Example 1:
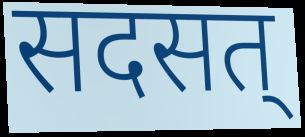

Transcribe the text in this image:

सदसत्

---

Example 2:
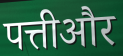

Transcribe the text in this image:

पत्तीऔर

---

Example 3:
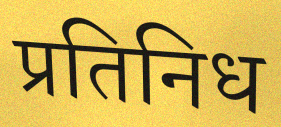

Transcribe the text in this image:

प्रतिनिध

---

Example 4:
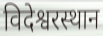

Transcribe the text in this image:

विदेश्वरस्थान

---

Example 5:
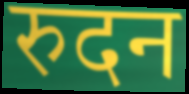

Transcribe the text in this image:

रुदन